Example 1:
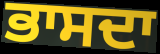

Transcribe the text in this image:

ਭਾਸਦਾ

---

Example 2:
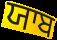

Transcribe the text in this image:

ਯਾਬ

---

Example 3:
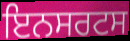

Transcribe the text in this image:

ਇਨਸਰਟਸ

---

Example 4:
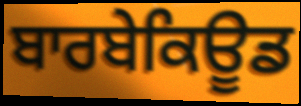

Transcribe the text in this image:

ਬਾਰਬੇਕਿਊਡ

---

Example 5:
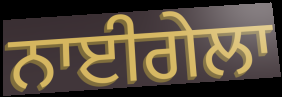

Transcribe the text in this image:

ਨਾਈਗੇਲਾ